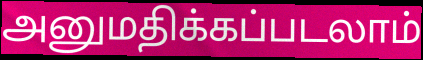
அனுமதிக்கப்படலாம்